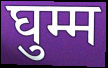
घुम्म